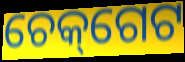
ଚେକ୍‌ଗେଟ